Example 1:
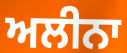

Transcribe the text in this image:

ਅਲੀਨਾ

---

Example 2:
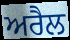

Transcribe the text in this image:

ਅਰੈਲ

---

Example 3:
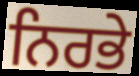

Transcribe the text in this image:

ਨਿਰਭੇ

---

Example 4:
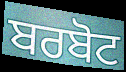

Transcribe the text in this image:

ਬਰਬੋਟ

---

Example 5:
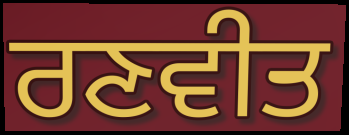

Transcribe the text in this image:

ਰਣਵੀਤ